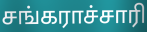
சங்கராச்சாரி